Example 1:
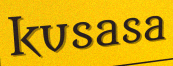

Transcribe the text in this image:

kusasa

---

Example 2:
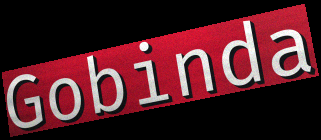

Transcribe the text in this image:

Gobinda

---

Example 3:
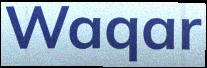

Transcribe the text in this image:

Waqar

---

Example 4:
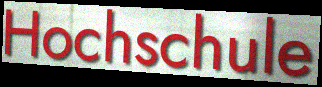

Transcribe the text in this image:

Hochschule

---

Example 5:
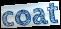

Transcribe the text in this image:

coat